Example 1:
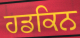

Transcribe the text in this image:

ਹਡਕਿਨ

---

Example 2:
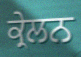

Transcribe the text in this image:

ਕ੍ਰੇਲਨ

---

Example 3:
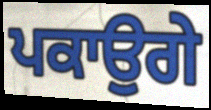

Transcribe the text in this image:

ਪਕਾਉਗੇ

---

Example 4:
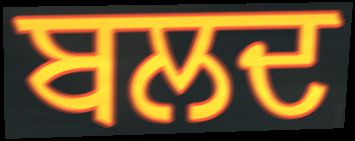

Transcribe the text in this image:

ਬਲਦ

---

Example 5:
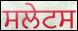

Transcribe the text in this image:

ਸਲੇਟਸ